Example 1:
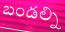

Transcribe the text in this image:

బండల్ని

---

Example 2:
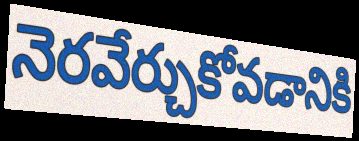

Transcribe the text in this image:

నెరవేర్చుకోవడానికి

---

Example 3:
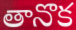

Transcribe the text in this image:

తానొక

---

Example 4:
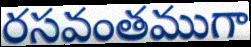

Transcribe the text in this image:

రసవంతముగా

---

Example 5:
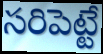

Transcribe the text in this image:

సరిపెట్టే